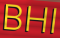
BHI